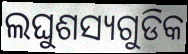
ଲଘୁଶସ୍ୟଗୁଡିକ